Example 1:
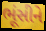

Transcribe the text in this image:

ભૂંસીને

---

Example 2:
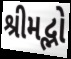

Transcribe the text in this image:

શ્રીમદ્ભો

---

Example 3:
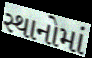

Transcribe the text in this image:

સ્થાનોમાં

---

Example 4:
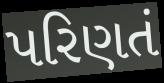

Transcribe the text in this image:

પરિણતં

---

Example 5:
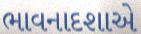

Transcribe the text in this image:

ભાવનાદશાએ